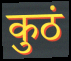
कुठं